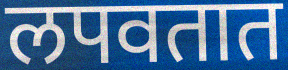
लपवतात